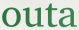
outa